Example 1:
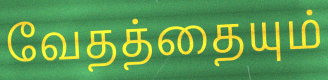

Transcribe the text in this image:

வேதத்தையும்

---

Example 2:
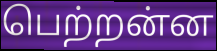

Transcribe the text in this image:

பெற்றன்ன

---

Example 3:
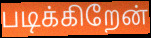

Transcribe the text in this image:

படிக்கிறேன்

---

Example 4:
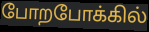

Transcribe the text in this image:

போறபோக்கில்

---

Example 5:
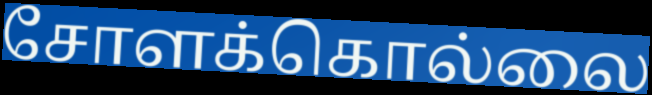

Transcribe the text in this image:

சோளக்கொல்லை